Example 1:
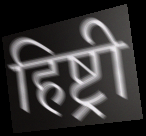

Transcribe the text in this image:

हिष्ट्री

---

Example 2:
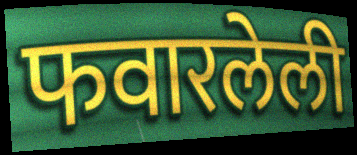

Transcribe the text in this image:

फवारलेली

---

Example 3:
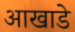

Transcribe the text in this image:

आखाडे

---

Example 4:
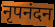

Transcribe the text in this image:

नृपनंदन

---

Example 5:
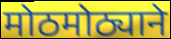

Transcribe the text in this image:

मोठमोठ्याने